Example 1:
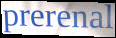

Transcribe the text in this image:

prerenal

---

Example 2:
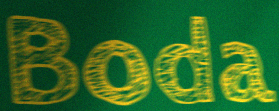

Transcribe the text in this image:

Boda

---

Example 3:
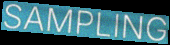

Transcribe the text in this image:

SAMPLING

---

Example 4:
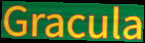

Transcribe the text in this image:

Gracula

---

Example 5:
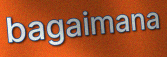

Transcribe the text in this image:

bagaimana